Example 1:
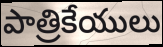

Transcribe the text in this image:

పాత్రికేయులు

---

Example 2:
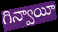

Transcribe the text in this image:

గిన్వాయీ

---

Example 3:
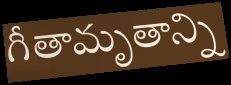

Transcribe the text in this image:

గీతామృతాన్ని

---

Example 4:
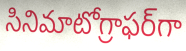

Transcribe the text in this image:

సినిమాటోగ్రాఫర్‌గా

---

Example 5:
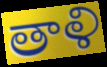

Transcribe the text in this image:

తాళి